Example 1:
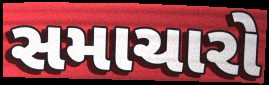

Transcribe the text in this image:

સમાચારો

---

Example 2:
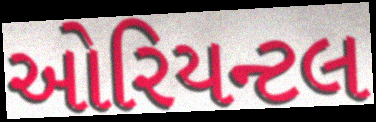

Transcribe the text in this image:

ઓરિયન્ટલ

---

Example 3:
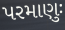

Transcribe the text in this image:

પરમાણુઃ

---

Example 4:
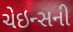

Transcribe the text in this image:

ચેઇન્સની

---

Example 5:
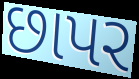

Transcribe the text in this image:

છાપર